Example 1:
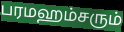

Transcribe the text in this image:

பரமஹம்சரும்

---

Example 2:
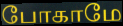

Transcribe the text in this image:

போகாமே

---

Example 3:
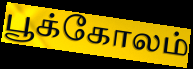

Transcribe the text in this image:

பூக்கோலம்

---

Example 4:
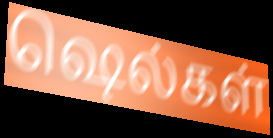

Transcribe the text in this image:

ஷெல்கள்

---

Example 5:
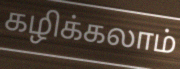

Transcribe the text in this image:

கழிக்கலாம்